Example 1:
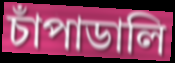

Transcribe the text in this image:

চাঁপাডালি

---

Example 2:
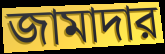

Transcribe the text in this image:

জামাদার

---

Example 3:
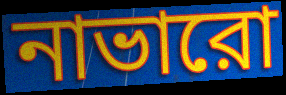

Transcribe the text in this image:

নাভারো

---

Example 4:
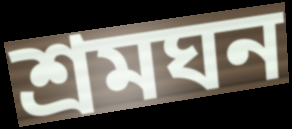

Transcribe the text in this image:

শ্রমঘন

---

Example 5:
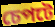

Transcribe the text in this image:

চেপটে